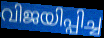
വിജയിപ്പിച്ച